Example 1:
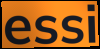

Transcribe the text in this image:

essi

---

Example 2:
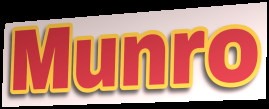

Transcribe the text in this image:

Munro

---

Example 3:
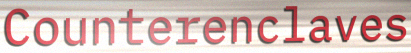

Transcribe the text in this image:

Counterenclaves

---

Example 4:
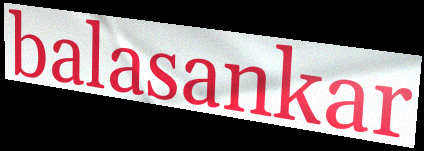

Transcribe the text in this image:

balasankar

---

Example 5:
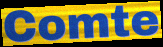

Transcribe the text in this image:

Comte